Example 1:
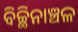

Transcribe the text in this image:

ବିଚ୍ଛିନାଞ୍ଚଳ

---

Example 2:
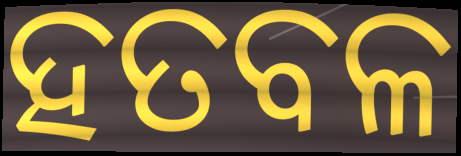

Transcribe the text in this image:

ହତବଳ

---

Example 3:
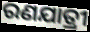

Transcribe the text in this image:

ରଣଯାତ୍ରୀ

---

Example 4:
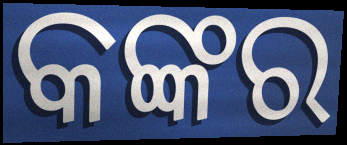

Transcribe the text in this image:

କଙ୍କର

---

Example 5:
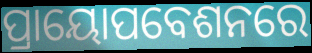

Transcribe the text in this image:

ପ୍ରାୟୋପବେଶନରେ